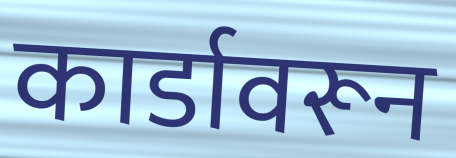
कार्डावरून